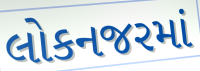
લોકનજરમાં